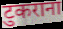
टुकराना